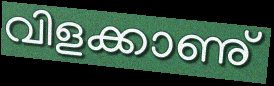
വിളക്കാണു്